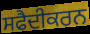
ਸਫੈਦੀਕਰਨ